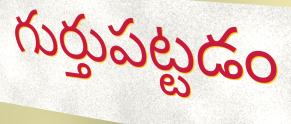
గుర్తుపట్టడం